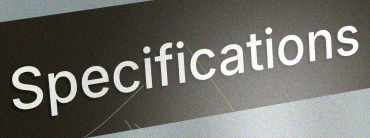
Specifications